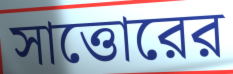
সাত্তোরের